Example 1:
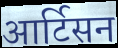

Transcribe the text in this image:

आर्टिसन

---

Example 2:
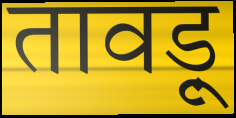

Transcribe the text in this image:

तावड़ू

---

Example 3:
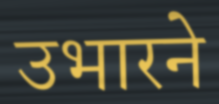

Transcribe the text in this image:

उभारने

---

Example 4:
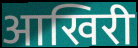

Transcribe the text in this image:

आखिरी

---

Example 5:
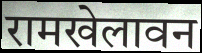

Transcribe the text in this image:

रामखेलावन